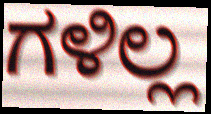
ಗಳಿಲ್ಲ